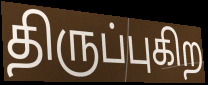
திருப்புகிற